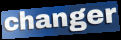
changer